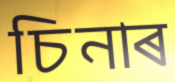
চিনাৰ